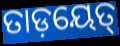
ତାଡ଼ୟେତ୍